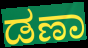
ಡಣಾ